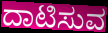
ದಾಟಿಸುವ